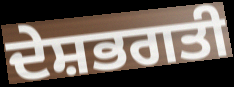
ਦੇਸ਼ਭਗਤੀ